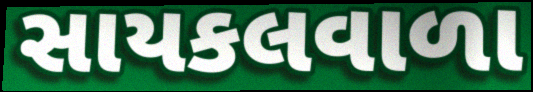
સાયકલવાળા